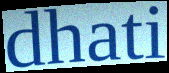
dhati